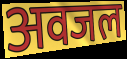
अवजल